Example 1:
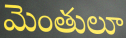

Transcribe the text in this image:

మెంతులూ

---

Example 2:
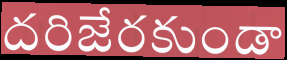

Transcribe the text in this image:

దరిజేరకుండా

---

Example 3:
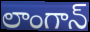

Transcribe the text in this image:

లాంగాన్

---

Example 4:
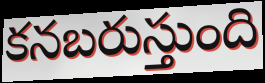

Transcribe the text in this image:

కనబరుస్తుంది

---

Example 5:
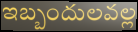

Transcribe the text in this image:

ఇబ్బందులవల్ల